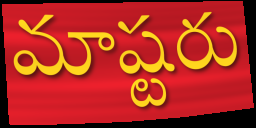
మాష్టరు